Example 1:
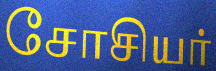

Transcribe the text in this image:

சோசியர்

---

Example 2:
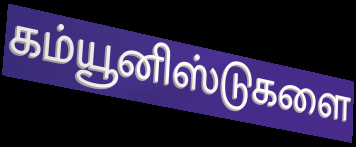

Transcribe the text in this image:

கம்யூனிஸ்டுகளை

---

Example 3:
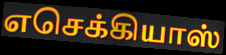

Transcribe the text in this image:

எசெக்கியாஸ்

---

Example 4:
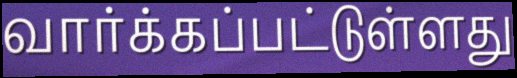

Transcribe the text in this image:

வார்க்கப்பட்டுள்ளது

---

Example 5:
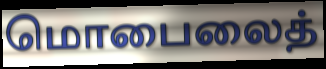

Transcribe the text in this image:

மொபைலைத்